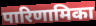
पारिणामिका